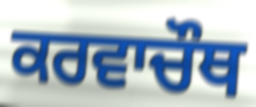
ਕਰਵਾਚੌਥ